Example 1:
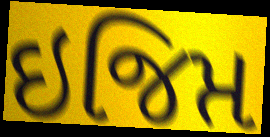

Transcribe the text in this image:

ઇજિપ્ત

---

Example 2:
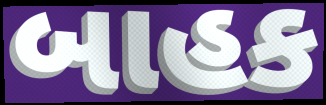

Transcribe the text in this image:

બાહક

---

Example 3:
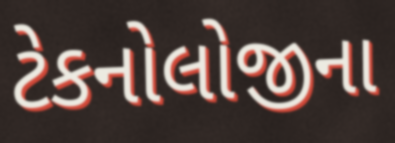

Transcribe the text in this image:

ટેકનોલોજીના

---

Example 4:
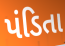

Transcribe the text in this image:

પંડિતા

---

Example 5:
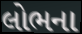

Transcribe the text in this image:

લોભના